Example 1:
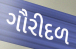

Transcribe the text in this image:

ગૌરીદળ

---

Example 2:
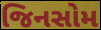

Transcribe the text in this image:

જિનસોમ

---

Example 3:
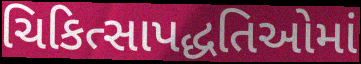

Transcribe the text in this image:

ચિકિત્સાપદ્ધતિઓમાં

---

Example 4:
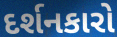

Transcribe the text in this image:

દર્શનકારો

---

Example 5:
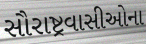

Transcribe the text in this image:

સૌરાષ્ટ્રવાસીઓના